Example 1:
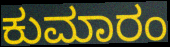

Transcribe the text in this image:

ಕುಮಾರಂ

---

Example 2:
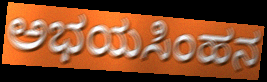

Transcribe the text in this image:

ಅಭಯಸಿಂಹನ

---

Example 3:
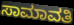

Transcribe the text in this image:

ಸಾಮಾವತಿ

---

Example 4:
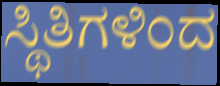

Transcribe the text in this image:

ಸ್ಥಿತಿಗಳಿಂದ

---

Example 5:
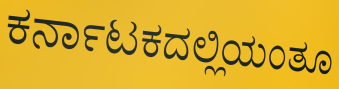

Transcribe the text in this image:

ಕರ್ನಾಟಕದಲ್ಲಿಯಂತೂ